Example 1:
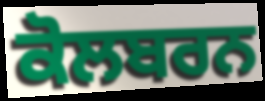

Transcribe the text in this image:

ਕੋਲਬਰਨ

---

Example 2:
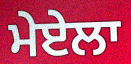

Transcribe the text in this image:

ਮੇਏਲਾ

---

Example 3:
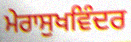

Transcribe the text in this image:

ਮੇਰਾਸੁਖਵਿੰਦਰ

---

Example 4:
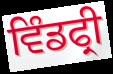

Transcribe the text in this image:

ਵਿੰਡਫ੍ਰੀ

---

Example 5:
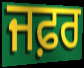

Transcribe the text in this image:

ਜਫ਼ਰ